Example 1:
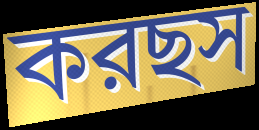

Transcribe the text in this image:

করছস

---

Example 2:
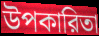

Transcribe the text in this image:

উপকারিতা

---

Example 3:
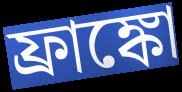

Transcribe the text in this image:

ফ্রাঙ্কো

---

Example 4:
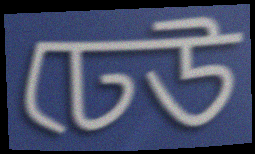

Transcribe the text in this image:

ঢেউ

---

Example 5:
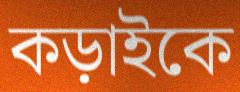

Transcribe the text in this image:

কড়াইকে